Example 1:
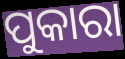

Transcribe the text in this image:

ପୁକାରା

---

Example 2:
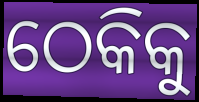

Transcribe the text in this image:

ଠେକିକୁ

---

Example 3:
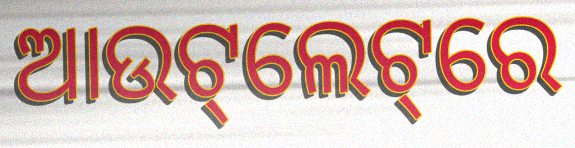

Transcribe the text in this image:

ଆଉଟ୍‌ଲେଟ୍‌ରେ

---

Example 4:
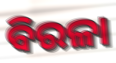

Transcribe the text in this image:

ବିରଳା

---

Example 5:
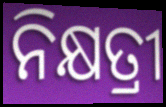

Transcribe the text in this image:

ନିକ୍ଷତ୍ରୀ